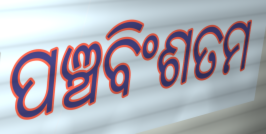
ପଞ୍ଚବିଂଶତମ